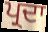
ਪ੍ਰਦਾ